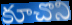
కూచొని